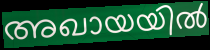
അഖായയിൽ